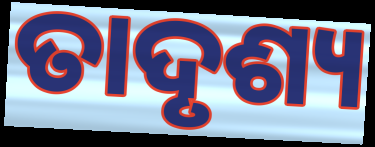
ତାଦୃଶ୍ୟ